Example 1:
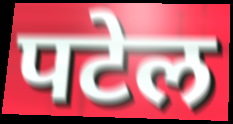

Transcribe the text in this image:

पटेल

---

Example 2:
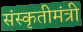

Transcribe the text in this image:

संस्कृतीमंत्री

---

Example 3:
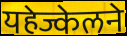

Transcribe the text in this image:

यहेज्केलने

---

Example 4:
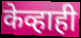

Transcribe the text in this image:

केव्हाही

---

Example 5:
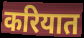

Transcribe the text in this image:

करियात